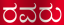
ರವರು